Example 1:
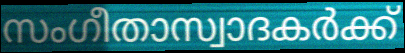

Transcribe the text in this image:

സംഗീതാസ്വാദകർക്ക്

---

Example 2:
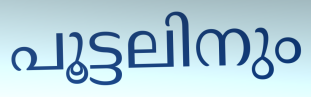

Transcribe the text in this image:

പൂട്ടലിനും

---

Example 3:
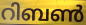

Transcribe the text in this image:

റിബൺ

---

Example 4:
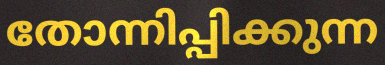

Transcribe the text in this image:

തോന്നിപ്പിക്കുന്ന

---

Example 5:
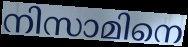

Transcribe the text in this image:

നിസാമിനെ